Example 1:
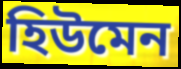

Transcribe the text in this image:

হিউমেন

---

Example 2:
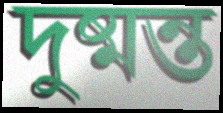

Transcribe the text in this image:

দুষ্মন্ত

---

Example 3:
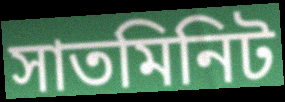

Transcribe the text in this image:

সাতমিনিট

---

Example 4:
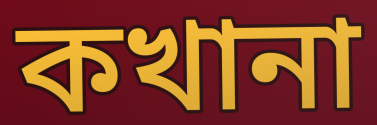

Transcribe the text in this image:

কখানা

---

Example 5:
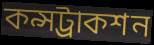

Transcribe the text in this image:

কন্সট্রাকশন